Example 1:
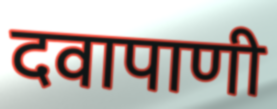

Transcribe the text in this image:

दवापाणी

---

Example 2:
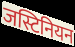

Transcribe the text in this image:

जस्टिनियन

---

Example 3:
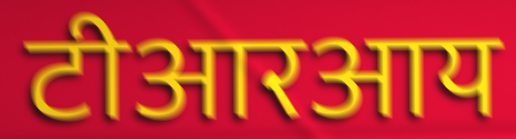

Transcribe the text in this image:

टीआरआय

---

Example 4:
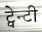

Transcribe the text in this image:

ट्वेन्टी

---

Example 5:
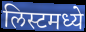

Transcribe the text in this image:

लिस्टमध्ये